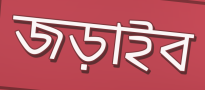
জড়াইব